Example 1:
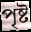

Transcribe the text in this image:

পৃষ্ট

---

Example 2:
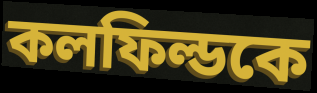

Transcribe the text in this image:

কলফিল্ডকে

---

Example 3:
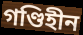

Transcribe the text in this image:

গণ্ডিহীন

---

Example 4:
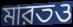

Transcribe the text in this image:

মারতও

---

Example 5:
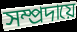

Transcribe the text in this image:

সম্প্রদায়ে